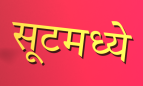
सूटमध्ये